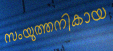
സംയുത്തനികായ